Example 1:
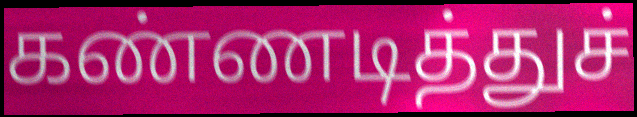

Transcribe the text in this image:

கண்ணடித்துச்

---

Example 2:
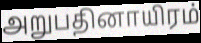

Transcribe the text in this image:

அறுபதினாயிரம்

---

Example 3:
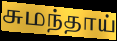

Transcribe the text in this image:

சுமந்தாய்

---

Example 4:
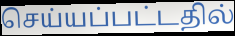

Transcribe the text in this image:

செய்யப்பட்டதில்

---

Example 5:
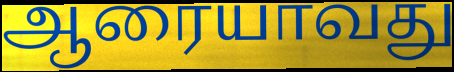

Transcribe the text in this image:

ஆரையாவது